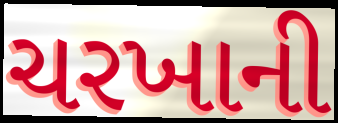
ચરખાની